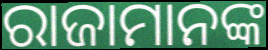
ରାଜାମାନଙ୍କ